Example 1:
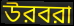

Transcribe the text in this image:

উরবরা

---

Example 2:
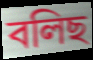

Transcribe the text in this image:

বলিছ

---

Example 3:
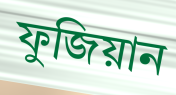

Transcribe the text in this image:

ফুজিয়ান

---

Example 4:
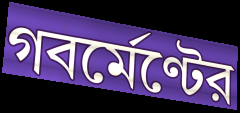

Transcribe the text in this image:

গবর্মেণ্টের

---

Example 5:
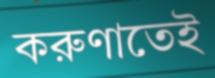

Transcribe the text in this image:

করুণাতেই